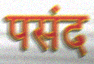
पसंद